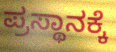
ಪ್ರಸ್ಥಾನಕ್ಕೆ